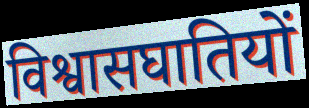
विश्वासघातियों